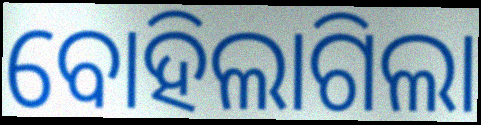
ବୋହିଲାଗିଲା